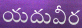
యదువీర